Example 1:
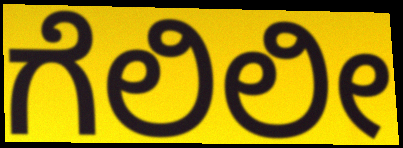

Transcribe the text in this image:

ಗೆಲಿಲೀ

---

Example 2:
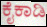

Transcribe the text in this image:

ಕೈಕಾಡಿ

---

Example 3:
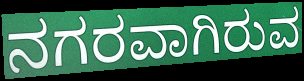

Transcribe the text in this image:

ನಗರವಾಗಿರುವ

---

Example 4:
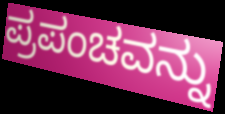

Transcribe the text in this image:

ಪ್ರಪಂಚವನ್ನು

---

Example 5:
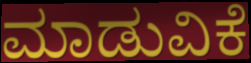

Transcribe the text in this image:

ಮಾಡುವಿಕೆ